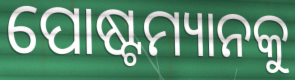
ପୋଷ୍ଟମ୍ୟାନକୁ